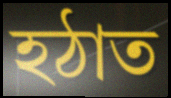
হঠাত